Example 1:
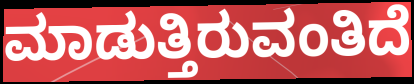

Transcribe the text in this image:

ಮಾಡುತ್ತಿರುವಂತಿದೆ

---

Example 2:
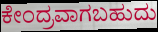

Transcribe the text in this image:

ಕೇಂದ್ರವಾಗಬಹುದು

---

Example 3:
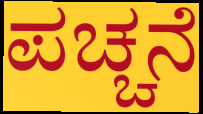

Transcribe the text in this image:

ಪಚ್ಚನೆ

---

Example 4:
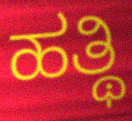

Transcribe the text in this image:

ಹತ್ಥಿ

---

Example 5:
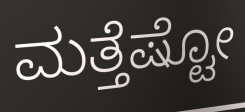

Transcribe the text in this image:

ಮತ್ತೆಷ್ಟೋ